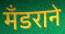
मँडराने